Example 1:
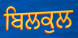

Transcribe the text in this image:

ਬਿਲਕੁਲ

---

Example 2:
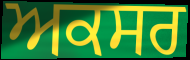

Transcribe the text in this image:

ਅਕਸਰ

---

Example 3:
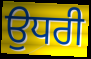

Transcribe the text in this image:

ਉਧਰੀ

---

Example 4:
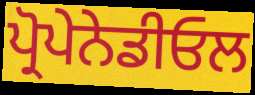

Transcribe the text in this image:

ਪ੍ਰੋਪੇਨੇਡੀਓਲ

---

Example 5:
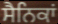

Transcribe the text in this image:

ਸੈਨਿਕਾਂ